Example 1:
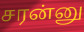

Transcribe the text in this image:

சரன்னு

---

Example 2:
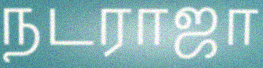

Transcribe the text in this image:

நடராஜா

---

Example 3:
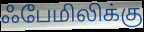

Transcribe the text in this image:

ஃபேமிலிக்கு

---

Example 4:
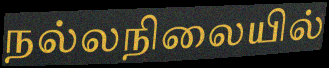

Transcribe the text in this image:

நல்லநிலையில்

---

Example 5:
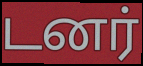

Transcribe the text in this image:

டனர்